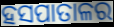
ହସପାତାଳର